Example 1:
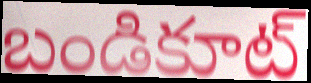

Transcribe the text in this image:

బండికూట్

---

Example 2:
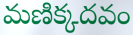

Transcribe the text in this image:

మణిక్కదవం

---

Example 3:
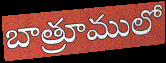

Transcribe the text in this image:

బాత్రూములో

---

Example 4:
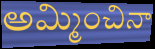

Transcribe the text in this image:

అమ్మించినా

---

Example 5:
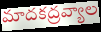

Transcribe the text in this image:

మాదకద్రవ్యాల